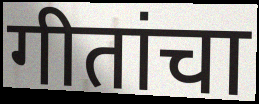
गीतांचा